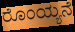
ರೊಂಯ್ಯನೆ